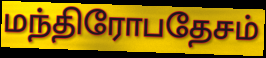
மந்திரோபதேசம்